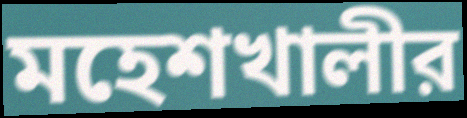
মহেশখালীর